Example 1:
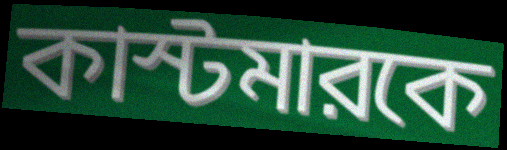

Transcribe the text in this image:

কাস্টমারকে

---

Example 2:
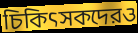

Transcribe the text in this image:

চিকিৎসকদেরও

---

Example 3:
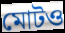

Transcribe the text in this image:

মোটও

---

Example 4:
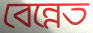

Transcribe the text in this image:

বেন্নেত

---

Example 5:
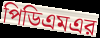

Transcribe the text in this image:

পিডিএমএর